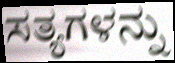
ಸತ್ಯಗಳನ್ನು